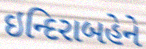
ઇન્દિરાબહેને